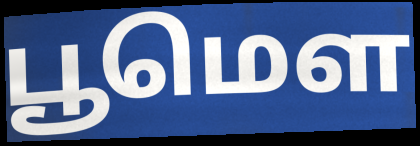
பூமௌ